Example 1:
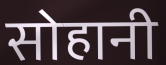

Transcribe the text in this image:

सोहानी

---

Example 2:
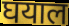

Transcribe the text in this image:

घयाल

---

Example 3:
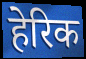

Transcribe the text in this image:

हेरिक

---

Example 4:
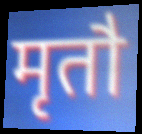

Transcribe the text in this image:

मृतौ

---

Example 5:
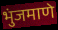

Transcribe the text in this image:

भुंजमाणे